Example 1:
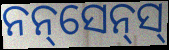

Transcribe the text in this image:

ନନ୍‌ସେନ୍‌ସ୍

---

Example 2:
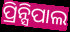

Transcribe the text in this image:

ପ୍ରିନ୍ସିପାଲ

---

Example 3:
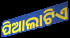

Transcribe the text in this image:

ପିଆଲାଟିଏ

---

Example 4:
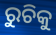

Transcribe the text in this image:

ରୁଚିକୁ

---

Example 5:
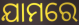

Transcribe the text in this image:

ଯାମରେ